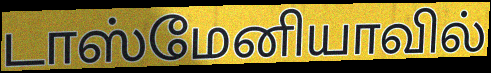
டாஸ்மேனியாவில்